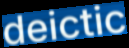
deictic